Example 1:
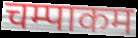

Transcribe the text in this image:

चम्पाकम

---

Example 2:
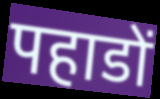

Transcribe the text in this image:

पहाडों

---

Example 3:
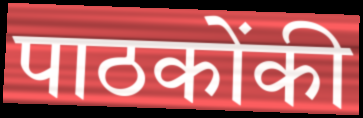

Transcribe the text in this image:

पाठकोंकी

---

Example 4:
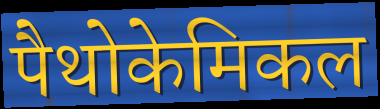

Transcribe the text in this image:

पैथोकेमिकल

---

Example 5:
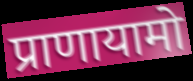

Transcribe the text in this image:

प्राणायामो